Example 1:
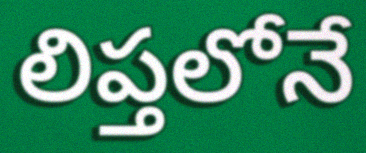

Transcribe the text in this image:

లిప్తలోనే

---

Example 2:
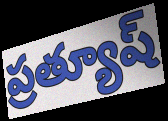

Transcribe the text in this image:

ప్రత్యూష్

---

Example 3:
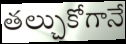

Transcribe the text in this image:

తల్చుకోగానే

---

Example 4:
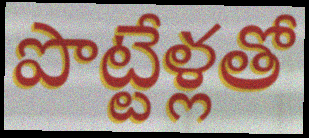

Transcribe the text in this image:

పొట్టేళ్లతో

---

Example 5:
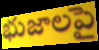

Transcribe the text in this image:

భుజాలపై